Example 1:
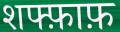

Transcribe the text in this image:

शफ्फ़ाफ़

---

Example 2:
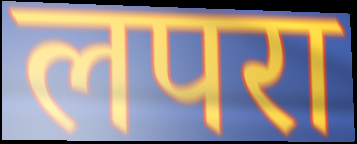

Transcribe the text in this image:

लपरा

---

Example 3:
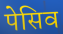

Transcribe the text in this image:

पेसिव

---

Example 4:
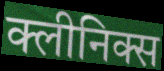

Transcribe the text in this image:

क्लीनिक्स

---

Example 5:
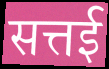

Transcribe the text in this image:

सत्तई